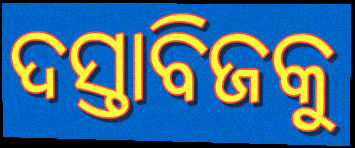
ଦସ୍ତାବିଜକୁ